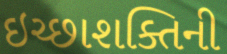
ઇચ્છાશક્તિની